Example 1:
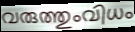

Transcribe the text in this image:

വരുത്തുംവിധം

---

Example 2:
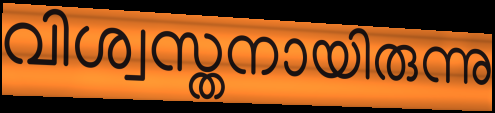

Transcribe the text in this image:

വിശ്വസ്തനായിരുന്നു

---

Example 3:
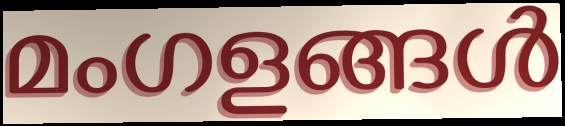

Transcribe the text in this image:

മംഗളങ്ങൾ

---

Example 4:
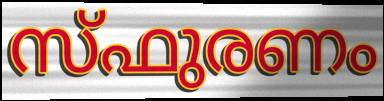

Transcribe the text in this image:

സ്ഫുരണം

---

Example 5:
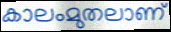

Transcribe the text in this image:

കാലംമുതലാണ്